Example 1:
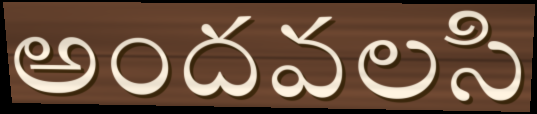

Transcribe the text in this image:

అందవలసి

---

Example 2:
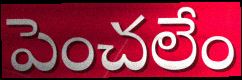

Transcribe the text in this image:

పెంచలేం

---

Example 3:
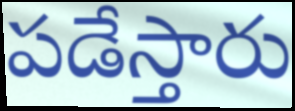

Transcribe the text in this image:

పడేస్తారు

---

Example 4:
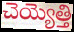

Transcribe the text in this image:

చెయ్యెత్తి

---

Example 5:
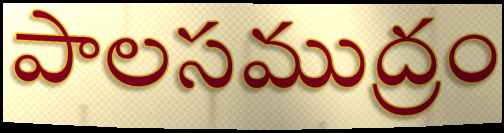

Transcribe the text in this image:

పాలసముద్రం